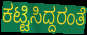
ಕಟ್ಟಿಸಿದ್ದರಂತೆ